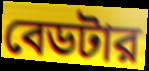
বেডটার